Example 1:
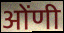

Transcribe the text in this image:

ओंणी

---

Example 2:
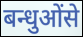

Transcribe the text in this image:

बन्धुओंसे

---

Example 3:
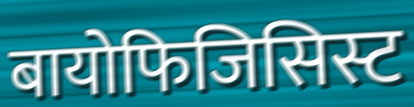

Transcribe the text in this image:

बायोफिजिसिस्ट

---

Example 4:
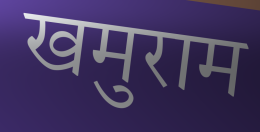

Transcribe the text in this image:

खमुराम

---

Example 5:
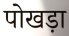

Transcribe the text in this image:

पोखड़ा